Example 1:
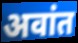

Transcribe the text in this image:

अवांत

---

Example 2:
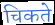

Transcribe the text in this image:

चिकते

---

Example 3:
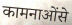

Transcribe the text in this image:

कामनाओंसे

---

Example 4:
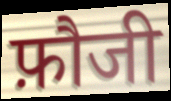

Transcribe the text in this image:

फ़ौजी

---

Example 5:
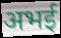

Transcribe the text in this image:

अभई